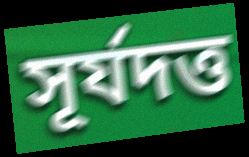
সূর্যদত্ত